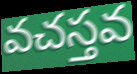
వచస్తవ